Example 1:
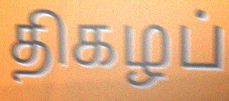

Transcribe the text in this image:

திகழப்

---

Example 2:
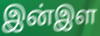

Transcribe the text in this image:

இன்இள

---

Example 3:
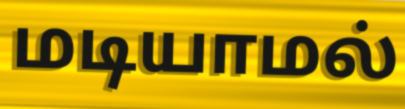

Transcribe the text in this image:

மடியாமல்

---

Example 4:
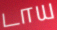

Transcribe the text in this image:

டாய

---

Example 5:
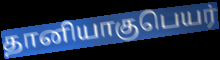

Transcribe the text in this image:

தானியாகுபெயர்